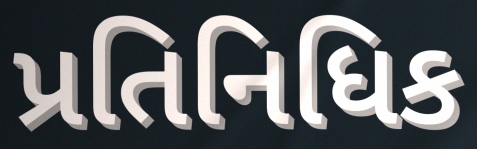
પ્રતિનિધિક